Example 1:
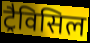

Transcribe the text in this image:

ट्रैविसिल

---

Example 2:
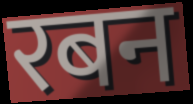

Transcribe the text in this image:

रबन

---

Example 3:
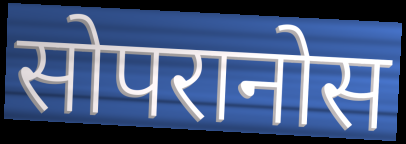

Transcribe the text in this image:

सोपरानोस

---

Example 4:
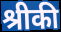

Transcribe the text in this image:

श्रीकी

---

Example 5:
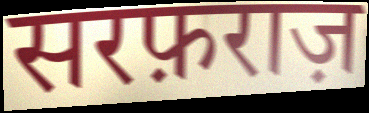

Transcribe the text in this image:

सरफ़राज़